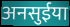
अनसुईया